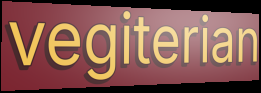
vegiterian